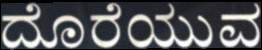
ದೊರೆಯುವ